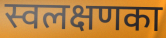
स्वलक्षणका